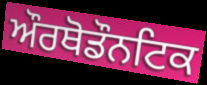
ਔਰਥੋਡੌਨਟਿਕ